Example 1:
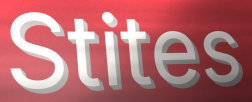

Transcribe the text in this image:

Stites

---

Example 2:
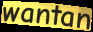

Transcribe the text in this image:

wantan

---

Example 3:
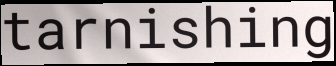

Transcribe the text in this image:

tarnishing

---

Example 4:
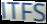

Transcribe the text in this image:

ITFS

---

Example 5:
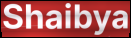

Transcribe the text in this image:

Shaibya